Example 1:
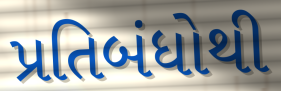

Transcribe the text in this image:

પ્રતિબંધોથી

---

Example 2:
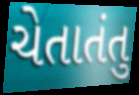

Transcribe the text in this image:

ચેતાતંતુ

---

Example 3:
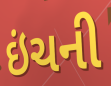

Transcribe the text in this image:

ઇંચની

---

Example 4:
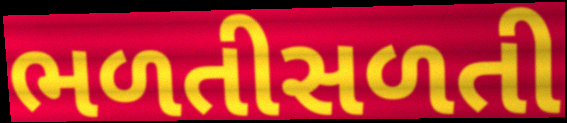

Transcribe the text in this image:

ભળતીસળતી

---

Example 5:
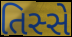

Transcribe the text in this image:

તિસ્સે